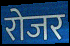
रोजर